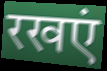
रखएं